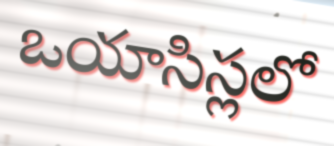
ఒయాసిస్లలో